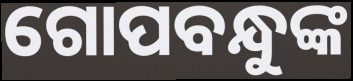
ଗୋପବନ୍ଧୁଙ୍କ